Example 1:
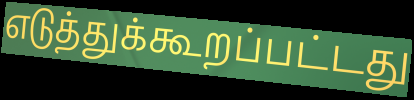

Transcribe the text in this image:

எடுத்துக்கூறப்பட்டது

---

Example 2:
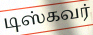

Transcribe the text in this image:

டிஸ்கவர்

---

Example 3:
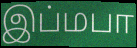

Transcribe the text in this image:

இப்மபா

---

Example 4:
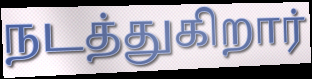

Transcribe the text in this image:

நடத்துகிறார்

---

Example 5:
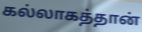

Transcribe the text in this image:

கல்லாகத்தான்